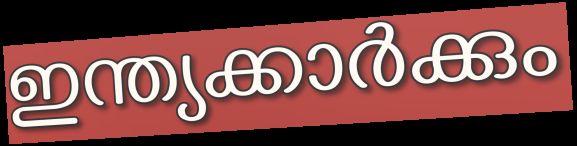
ഇന്ത്യക്കാർക്കും